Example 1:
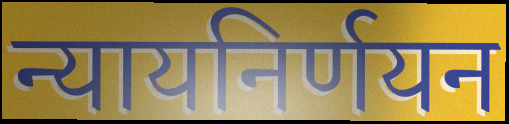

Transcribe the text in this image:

न्यायनिर्णयन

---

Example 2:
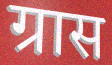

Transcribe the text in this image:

ग्रास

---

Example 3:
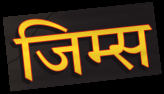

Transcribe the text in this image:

जिम्स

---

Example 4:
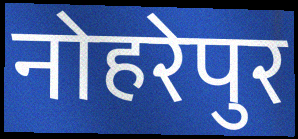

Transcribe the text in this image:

नोहरेपुर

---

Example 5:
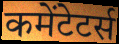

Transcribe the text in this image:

कमेंटेटर्स